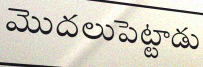
మొదలుపెట్టాడు